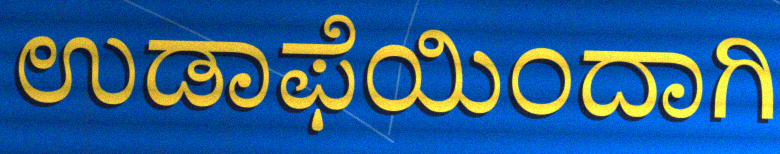
ಉಡಾಫೆಯಿಂದಾಗಿ